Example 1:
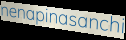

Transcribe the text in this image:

nenapinasanchi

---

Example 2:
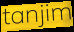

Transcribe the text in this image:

tanjim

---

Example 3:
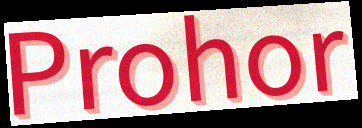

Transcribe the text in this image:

Prohor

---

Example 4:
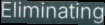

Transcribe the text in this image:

Eliminating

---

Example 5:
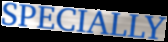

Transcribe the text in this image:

SPECIALLY